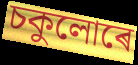
চকুলোৰে